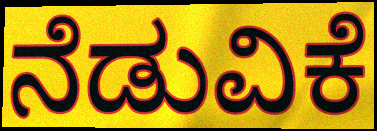
ನೆಡುವಿಕೆ